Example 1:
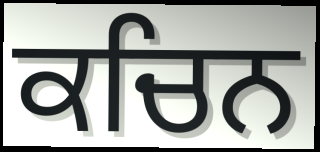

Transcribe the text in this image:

ਕਚਿਨ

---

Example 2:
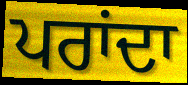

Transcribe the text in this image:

ਪਰਾਂਦਾ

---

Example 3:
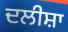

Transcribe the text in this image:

ਦਲੀਸ਼ਾ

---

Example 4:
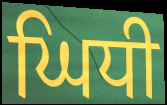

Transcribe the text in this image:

ਘਿਧੀ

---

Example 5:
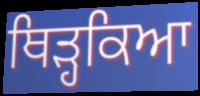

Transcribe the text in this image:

ਥਿੜ੍ਹਕਿਆ